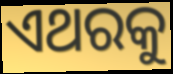
ଏଥରକୁ